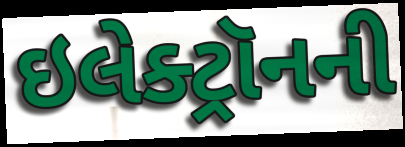
ઇલેક્ટ્રૉનની